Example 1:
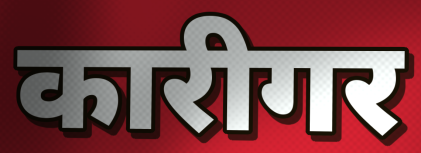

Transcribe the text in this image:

कारीगर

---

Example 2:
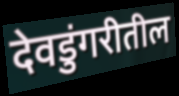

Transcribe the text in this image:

देवडुंगरीतील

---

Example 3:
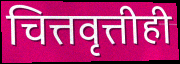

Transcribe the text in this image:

चित्तवृत्तीही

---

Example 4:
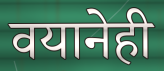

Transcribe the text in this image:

वयानेही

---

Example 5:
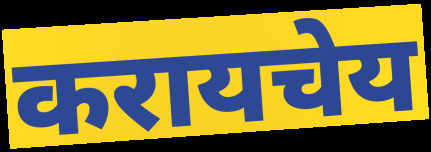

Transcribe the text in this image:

करायचेय